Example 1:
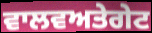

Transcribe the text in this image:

ਵਾਲਵਅਤੇਗੇਟ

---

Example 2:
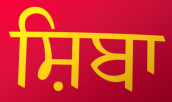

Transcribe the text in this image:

ਸ਼ਿਬਾ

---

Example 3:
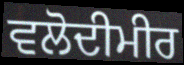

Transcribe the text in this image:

ਵਲੋਦੀਮੀਰ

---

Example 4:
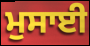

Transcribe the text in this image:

ਮੁਸਾਈ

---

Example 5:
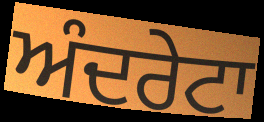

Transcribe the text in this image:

ਅੰਦਰੇਟਾ